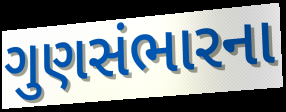
ગુણસંભારના